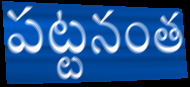
పట్టనంత